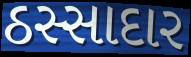
ઠસ્સાદાર